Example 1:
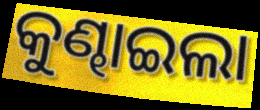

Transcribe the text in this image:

କୁଣ୍ଢାଇଲା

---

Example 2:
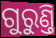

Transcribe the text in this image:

ଗୁରୁଣ୍ତି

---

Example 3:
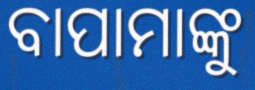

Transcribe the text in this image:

ବାପାମାଙ୍କୁ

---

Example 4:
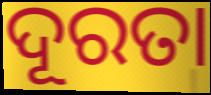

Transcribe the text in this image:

ଦୂରତା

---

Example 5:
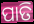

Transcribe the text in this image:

ପାତି